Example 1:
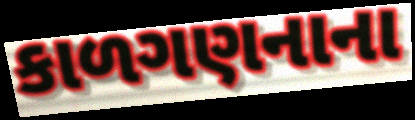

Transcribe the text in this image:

કાળગણનાના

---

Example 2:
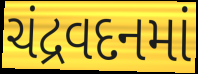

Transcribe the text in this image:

ચંદ્રવદનમાં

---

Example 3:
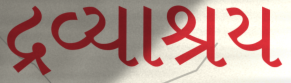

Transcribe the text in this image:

દ્રવ્યાશ્રય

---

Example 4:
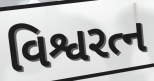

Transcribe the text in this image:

વિશ્વરત્ન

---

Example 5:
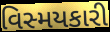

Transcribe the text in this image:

વિસ્મયકારી